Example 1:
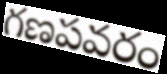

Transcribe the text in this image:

గణపవరం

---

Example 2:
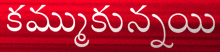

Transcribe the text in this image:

కమ్ముకున్నయి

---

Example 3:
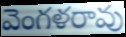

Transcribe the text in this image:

వెంగళరావు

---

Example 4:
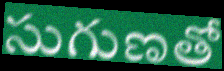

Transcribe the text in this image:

సుగుణతో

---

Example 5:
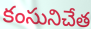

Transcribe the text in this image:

కంసునిచేత